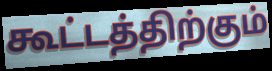
கூட்டத்திற்கும்